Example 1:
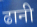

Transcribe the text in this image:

ढानी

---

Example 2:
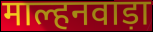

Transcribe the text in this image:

माल्हनवाड़ा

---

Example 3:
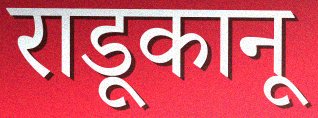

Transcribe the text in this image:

राडूकानू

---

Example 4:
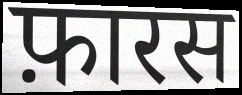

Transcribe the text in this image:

फ़ारस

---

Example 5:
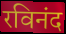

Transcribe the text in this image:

रविनंद